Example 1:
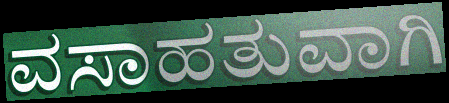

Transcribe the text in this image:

ವಸಾಹತುವಾಗಿ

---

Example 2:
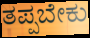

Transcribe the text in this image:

ತಪ್ಪಬೇಕು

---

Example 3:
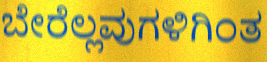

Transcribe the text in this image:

ಬೇರೆಲ್ಲವುಗಳಿಗಿಂತ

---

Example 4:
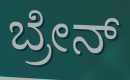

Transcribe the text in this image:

ಬ್ರೇನ್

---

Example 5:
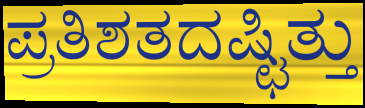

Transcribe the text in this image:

ಪ್ರತಿಶತದಷ್ಟಿತ್ತು